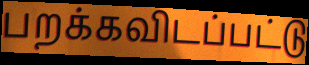
பறக்கவிடப்பட்டு